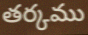
తర్కము